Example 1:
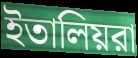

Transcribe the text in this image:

ইতালিয়রা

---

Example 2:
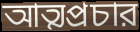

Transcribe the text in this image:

আত্মপ্রচার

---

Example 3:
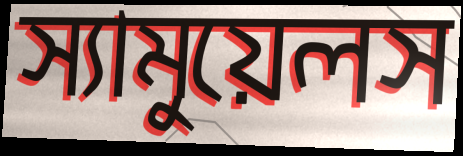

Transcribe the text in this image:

স্যামুয়েলস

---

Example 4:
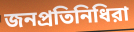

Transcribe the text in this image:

জনপ্রতিনিধিরা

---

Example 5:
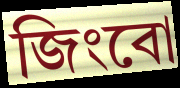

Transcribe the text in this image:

জিংবো